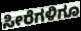
ಸೀರೆಗಳಿಗೂ